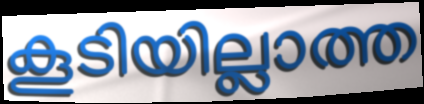
കൂടിയില്ലാത്ത